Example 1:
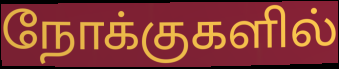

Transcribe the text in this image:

நோக்குகளில்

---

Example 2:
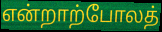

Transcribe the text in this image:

என்றாற்போலத்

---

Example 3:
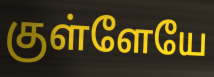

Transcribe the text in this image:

குள்ளேயே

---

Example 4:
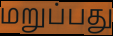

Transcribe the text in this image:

மறுப்பது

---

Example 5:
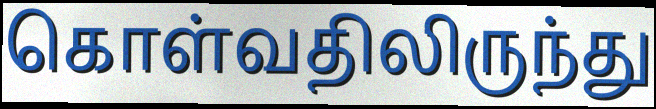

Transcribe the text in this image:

கொள்வதிலிருந்து